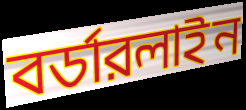
বর্ডারলাইন